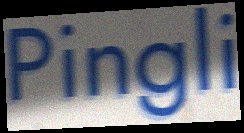
Pingli